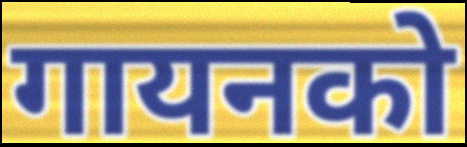
गायनको